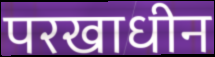
परखाधीन